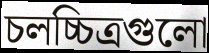
চলচ্চিত্রগুলো